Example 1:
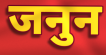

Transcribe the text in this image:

जनुन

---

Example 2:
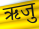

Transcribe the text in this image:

ऋजु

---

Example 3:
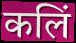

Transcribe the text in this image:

कलिं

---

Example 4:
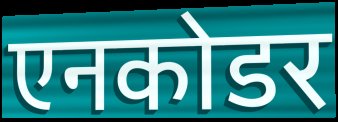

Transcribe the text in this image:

एनकोडर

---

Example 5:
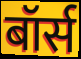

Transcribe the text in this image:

बॉर्स